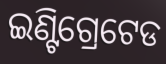
ଇଣ୍ଟିଗ୍ରେଟେଡ